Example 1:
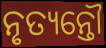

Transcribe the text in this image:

ନୃତ୍ୟନ୍ତୌ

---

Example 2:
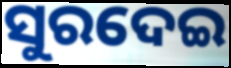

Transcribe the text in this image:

ସୁରଦେଇ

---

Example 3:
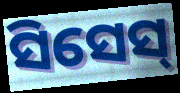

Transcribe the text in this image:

ସିସେସ୍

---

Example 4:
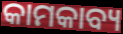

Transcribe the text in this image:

କାମକାବ୍ୟ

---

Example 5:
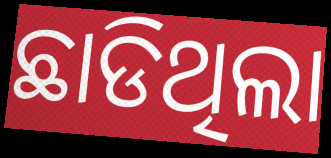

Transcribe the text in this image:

ଛାଡିଥିଲା